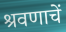
श्रवणाचें